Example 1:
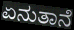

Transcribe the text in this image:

ಏನುತಾನೆ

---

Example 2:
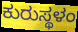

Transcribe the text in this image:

ಕುರುಸ್ಥಳಂ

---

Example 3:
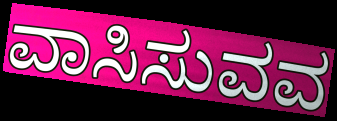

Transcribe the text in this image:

ವಾಸಿಸುವವ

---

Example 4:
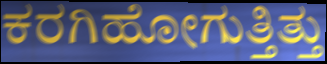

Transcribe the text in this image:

ಕರಗಿಹೋಗುತ್ತಿತ್ತು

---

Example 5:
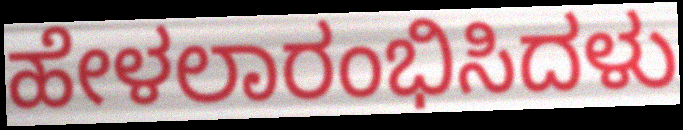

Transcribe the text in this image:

ಹೇಳಲಾರಂಭಿಸಿದಳು